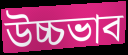
উচ্চভাব